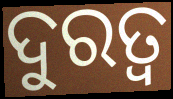
ଦୁରତ୍ଵ